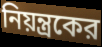
নিয়ন্ত্রকের